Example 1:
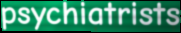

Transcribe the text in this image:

psychiatrists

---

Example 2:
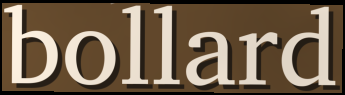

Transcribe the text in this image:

bollard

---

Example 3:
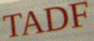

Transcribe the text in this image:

TADF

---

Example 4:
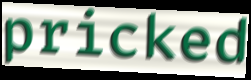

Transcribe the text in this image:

pricked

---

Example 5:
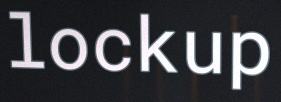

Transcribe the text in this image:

lockup